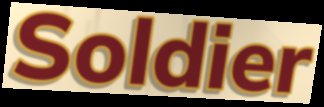
Soldier